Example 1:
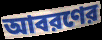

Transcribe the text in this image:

আবরণের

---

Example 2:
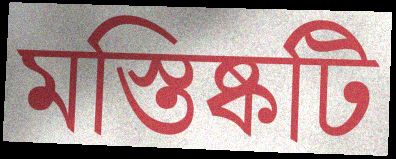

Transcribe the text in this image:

মস্তিষ্কটি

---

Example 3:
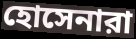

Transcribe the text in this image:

হোসেনারা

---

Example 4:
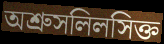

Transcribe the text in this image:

অশ্রুসলিলসিক্ত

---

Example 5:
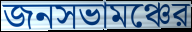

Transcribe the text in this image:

জনসভামঞ্চের